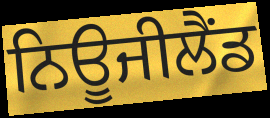
ਨਿਊਜੀਲੈਂਡ